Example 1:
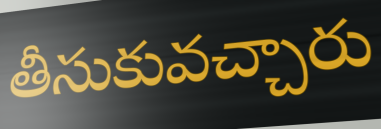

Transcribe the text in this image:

తీసుకువచ్చారు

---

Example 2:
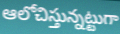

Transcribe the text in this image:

ఆలోచిస్తున్నట్టుగా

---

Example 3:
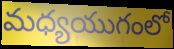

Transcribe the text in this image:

మధ్యయుగంలో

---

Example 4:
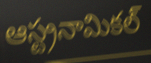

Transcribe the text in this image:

ఆస్ట్రనామికల్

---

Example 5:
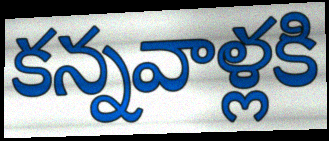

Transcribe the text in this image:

కన్నవాళ్లకి